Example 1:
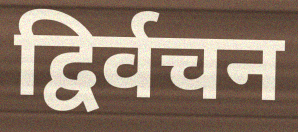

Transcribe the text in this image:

द्विर्वचन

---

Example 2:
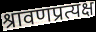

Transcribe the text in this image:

श्रावणप्रत्यक्ष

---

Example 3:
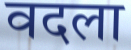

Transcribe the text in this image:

वदला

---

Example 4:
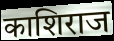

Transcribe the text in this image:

काशिराज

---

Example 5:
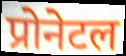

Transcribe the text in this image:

प्रोनेटल